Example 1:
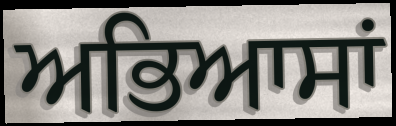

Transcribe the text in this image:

ਅਭਿਆਸਾਂ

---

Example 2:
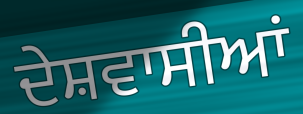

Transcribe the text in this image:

ਦੇਸ਼ਵਾਸੀਆਂ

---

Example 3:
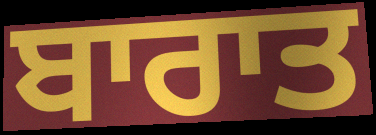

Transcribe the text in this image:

ਬਾਰਾਤ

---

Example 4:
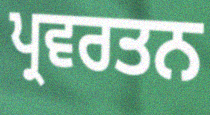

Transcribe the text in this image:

ਪ੍ਰਵਰਤਨ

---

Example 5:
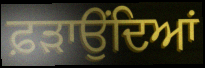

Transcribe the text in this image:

ਫ਼ੜਾਉਂਦਿਆਂ